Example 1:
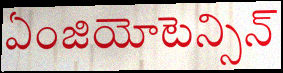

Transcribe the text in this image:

ఏంజియోటెన్సిన్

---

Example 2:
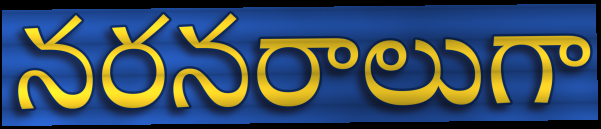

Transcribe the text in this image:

నరనరాలుగా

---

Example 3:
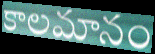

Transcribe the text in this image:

కాలమానం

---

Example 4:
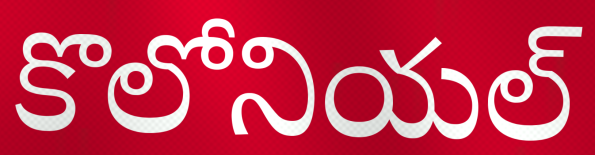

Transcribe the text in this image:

కొలోనియల్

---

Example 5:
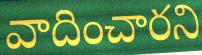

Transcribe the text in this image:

వాదించారని